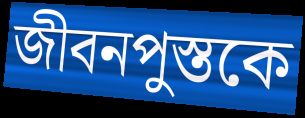
জীবনপুস্তকে